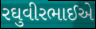
રઘુવીરભાઈએ